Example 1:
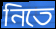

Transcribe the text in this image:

নিতে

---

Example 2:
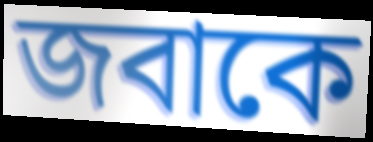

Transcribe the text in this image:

জবাকে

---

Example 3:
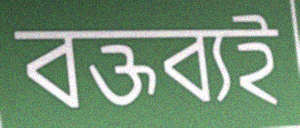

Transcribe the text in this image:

বক্তব্যই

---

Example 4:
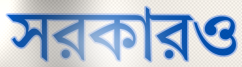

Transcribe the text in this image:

সরকারও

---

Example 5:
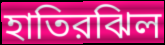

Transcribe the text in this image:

হাতিরঝিল